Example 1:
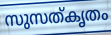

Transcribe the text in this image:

സുസത്കൃതം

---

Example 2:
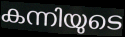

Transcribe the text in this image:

കന്നിയുടെ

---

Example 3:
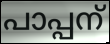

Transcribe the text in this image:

പാപ്പന്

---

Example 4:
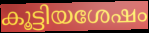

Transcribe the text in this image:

കൂട്ടിയശേഷം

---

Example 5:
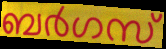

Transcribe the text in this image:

ബർഗസ്